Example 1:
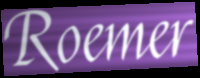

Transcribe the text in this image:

Roemer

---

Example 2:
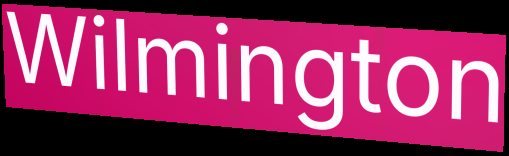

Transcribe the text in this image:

Wilmington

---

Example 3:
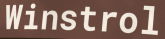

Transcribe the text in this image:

Winstrol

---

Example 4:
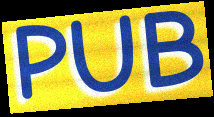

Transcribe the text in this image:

PUB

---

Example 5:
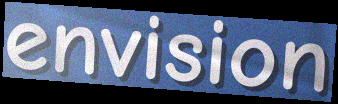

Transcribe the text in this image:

envision